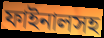
ফাইনালসহ